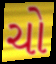
ચો